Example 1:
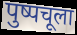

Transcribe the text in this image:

पुष्पचूला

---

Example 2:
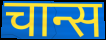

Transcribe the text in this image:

चान्स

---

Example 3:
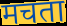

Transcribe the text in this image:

मचता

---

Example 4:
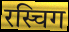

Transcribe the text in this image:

रस्चिग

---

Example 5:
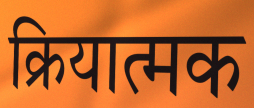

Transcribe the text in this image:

क्रियात्मक